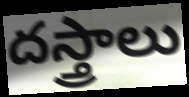
దస్త్రాలు